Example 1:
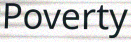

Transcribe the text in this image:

Poverty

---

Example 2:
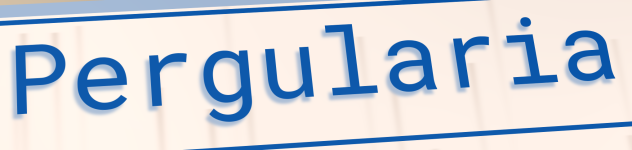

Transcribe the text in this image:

Pergularia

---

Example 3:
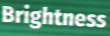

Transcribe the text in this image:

Brightness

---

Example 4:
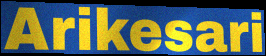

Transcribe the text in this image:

Arikesari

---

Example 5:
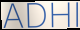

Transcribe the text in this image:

ADHI